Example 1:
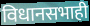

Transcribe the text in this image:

विधानसभाही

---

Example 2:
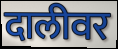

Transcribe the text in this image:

दालीवर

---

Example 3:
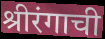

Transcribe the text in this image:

श्रीरंगाची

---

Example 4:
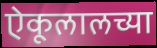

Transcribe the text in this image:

ऐकूलालच्या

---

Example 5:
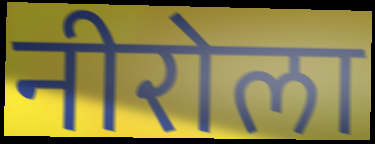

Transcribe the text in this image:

नीरोला